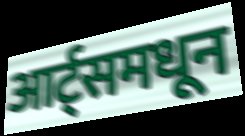
आर्ट्समधून